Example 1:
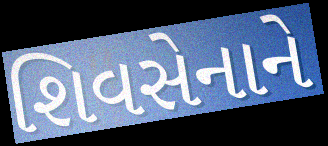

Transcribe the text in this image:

શિવસેનાને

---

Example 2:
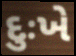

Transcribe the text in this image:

દુઃખે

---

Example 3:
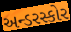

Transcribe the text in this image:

અન્ડરસ્કોર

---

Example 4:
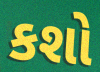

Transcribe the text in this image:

કશો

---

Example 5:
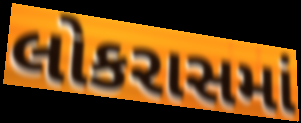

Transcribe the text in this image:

લોકરાસમાં